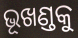
ଭୂଖଣ୍ଡକୁ